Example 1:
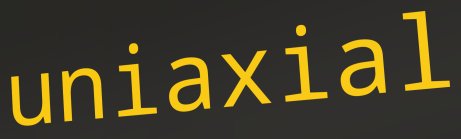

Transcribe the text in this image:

uniaxial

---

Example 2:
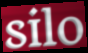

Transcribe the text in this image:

silo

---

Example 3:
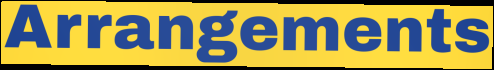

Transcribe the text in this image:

Arrangements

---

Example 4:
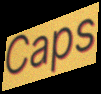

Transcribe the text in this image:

Caps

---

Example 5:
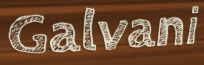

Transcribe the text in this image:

Galvani